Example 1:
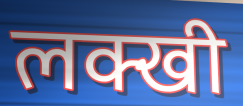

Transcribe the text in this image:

लक्खी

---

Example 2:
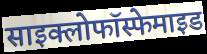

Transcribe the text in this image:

साइक्लोफॉस्फेमाइड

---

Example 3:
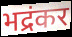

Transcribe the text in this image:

भद्रंकर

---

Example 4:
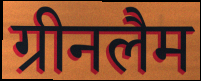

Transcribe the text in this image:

ग्रीनलैम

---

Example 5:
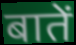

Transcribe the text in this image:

बातें